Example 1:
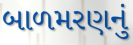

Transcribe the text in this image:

બાળમરણનું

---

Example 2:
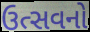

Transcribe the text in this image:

ઉત્સવનો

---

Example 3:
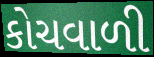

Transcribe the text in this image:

કોચવાળી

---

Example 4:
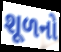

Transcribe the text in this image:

શૂળનો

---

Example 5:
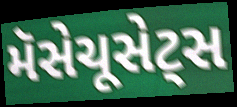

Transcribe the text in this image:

મૅસેચૂસેટ્સ